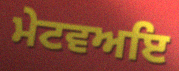
ਮੇਟਵਅਇ